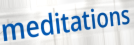
meditations